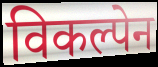
विकल्पेन